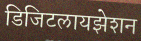
डिजिटलायझेशन